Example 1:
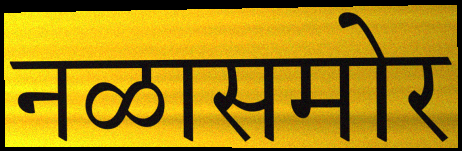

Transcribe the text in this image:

नळासमोर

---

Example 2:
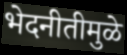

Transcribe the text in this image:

भेदनीतीमुळे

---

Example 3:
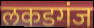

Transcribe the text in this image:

लकडगंज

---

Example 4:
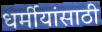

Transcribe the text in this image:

धर्मीयांसाठी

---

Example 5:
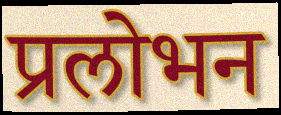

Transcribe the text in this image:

प्रलोभन